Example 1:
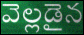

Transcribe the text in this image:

వెల్లడైన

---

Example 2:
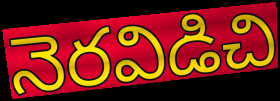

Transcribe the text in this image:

నెరవిడిచి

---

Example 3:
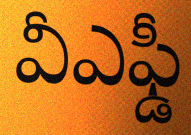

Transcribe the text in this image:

వీఎఫ్డీ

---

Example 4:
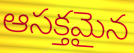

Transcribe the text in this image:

ఆసక్తమైన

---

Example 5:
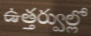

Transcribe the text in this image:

ఉత్తర్వుల్లో